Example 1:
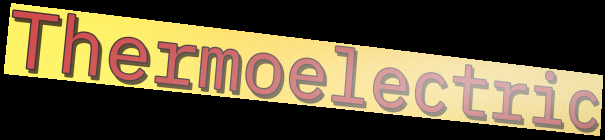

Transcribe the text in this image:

Thermoelectric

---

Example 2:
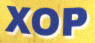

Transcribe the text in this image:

XOP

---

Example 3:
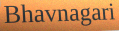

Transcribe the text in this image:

Bhavnagari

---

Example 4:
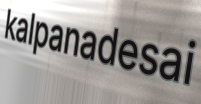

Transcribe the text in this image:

kalpanadesai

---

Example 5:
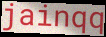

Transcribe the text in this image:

jainqq